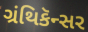
ગ્રંથિકૅન્સર